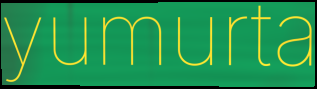
yumurta